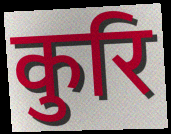
कुरि